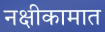
नक्षीकामात